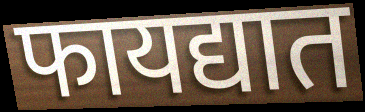
फायद्यात